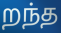
றந்த